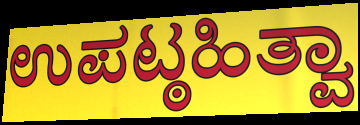
ಉಪಟ್ಠಹಿತ್ವಾ